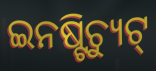
ଇନଷ୍ଟିଚ୍ୟୁଟ୍